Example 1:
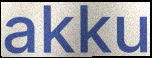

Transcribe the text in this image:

akku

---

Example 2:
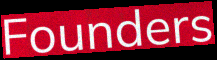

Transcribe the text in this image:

Founders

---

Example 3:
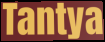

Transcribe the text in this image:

Tantya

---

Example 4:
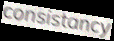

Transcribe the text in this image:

consistancy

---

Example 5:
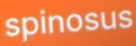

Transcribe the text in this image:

spinosus